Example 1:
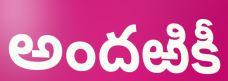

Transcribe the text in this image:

అందఱికీ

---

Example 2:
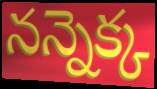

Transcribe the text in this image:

నన్నెక్క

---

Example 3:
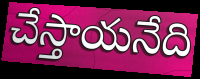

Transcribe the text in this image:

చేస్తాయనేది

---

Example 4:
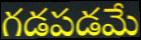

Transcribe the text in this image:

గడపడమే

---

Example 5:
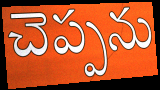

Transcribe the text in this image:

చెప్పను